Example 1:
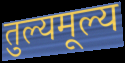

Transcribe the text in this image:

तुल्यमूल्य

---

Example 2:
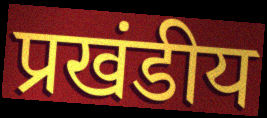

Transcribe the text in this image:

प्रखंडीय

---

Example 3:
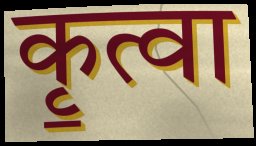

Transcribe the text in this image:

कृ॒त्वा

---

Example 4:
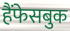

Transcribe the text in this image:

हैंफेसबुक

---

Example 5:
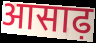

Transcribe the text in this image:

आसाढ़